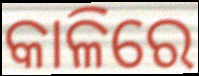
କାଳିରେ